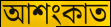
আশংকাত